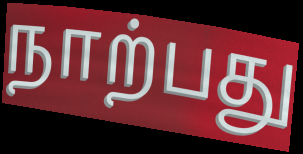
நாற்பது